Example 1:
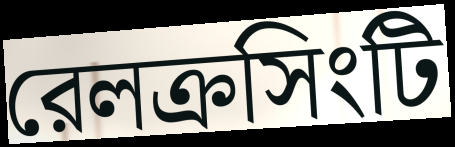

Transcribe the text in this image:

রেলক্রসিংটি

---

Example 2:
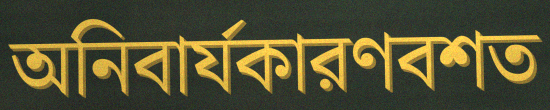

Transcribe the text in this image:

অনিবার্যকারণবশত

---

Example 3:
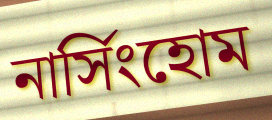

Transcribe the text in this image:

নার্সিংহোম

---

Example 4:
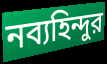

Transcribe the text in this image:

নব্যহিন্দুর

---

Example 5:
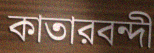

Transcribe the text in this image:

কাতারবন্দী